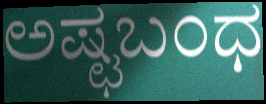
ಅಷ್ಟಬಂಧ